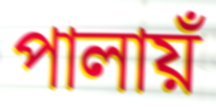
পালায়ঁ